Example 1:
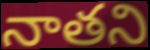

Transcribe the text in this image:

నాతని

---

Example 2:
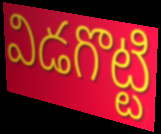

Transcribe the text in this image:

విడగొట్టి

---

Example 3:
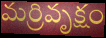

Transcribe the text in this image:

మర్రివృక్షం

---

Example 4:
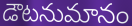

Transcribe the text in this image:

డౌటనుమానం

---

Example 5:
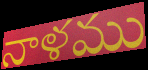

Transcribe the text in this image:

నాళము